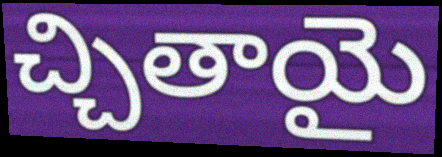
చ్చితాయై